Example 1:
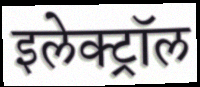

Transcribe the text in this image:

इलेक्ट्रॉल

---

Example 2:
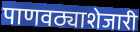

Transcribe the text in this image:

पाणवठ्याशेजारी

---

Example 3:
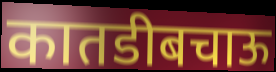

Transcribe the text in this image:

कातडीबचाऊ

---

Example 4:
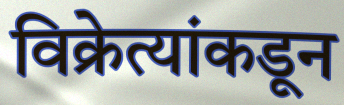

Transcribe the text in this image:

विक्रेत्यांकडून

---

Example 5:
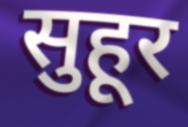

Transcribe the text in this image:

सुहूर